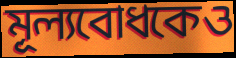
মূল্যবোধকেও